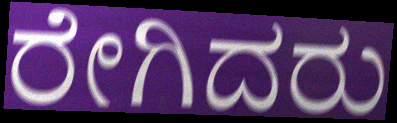
ರೇಗಿದರು